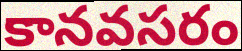
కానవసరం